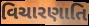
વિચારણાતિ